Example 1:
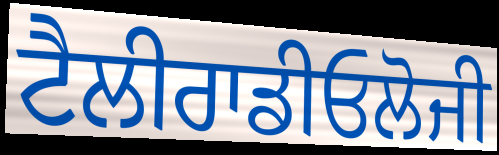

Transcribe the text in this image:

ਟੈਲੀਰਾਡੀਓਲੋਜੀ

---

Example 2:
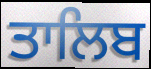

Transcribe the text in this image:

ਤਾਲਿਬ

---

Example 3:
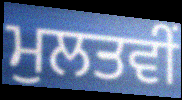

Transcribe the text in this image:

ਮੁਲਤਵੀਂ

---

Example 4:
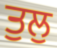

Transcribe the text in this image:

ਤੁਲੁ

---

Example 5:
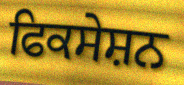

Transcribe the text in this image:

ਫਿਕਸੇਸ਼ਨ